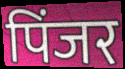
पिंजर